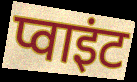
प्‍वाइंट